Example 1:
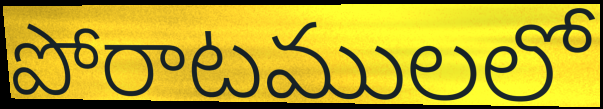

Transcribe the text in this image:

పోరాటములలో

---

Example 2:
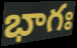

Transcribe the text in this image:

భాగః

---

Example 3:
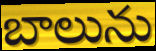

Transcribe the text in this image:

బాలును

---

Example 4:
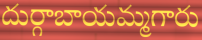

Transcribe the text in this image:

దుర్గాబాయమ్మగారు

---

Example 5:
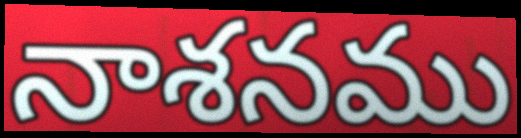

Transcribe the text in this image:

నాశనము